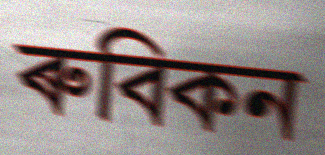
ৰুবিকন